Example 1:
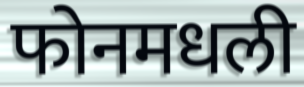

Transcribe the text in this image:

फोनमधली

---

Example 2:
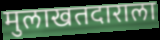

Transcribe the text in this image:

मुलाखतदाराला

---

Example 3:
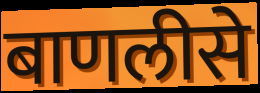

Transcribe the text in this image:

बाणलीसे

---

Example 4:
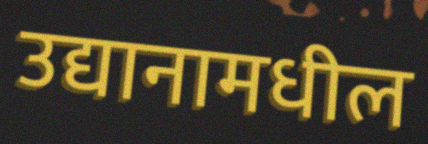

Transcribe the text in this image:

उद्यानामधील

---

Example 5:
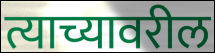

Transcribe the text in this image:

त्याच्यावरील